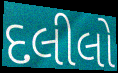
દલીલો